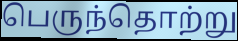
பெருந்தொற்று